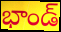
భాండ్